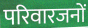
परिवारजनों